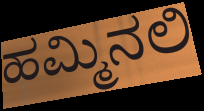
ಹಮ್ಮಿನಲಿ